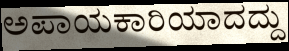
ಅಪಾಯಕಾರಿಯಾದದ್ದು